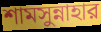
শামসুন্নাহার